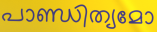
പാണ്ഡിത്യമോ